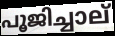
പൂജിച്ചാല്